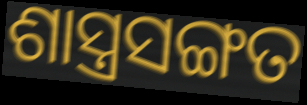
ଶାସ୍ତ୍ରସଙ୍ଗତ